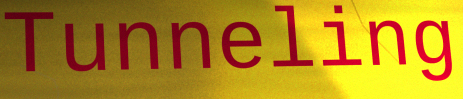
Tunneling